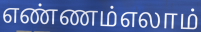
எண்ணம்எலாம்